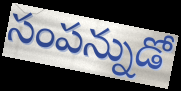
సంపన్నుడో